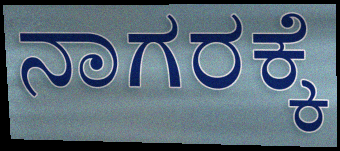
ನಾಗರಕ್ಕೆ